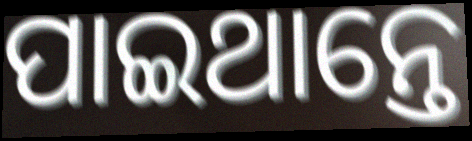
ପାଇଥାନ୍ତେ